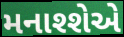
મનાશ્શેએ